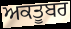
ਅਕਤੂਬਰ